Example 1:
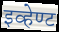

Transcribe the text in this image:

इव्हेण्ट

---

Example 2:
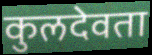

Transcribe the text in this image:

कुलदेवता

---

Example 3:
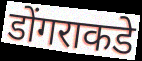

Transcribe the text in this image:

डोंगराकडे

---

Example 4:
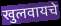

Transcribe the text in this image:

खुलवायचे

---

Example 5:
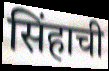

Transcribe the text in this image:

सिंहाची